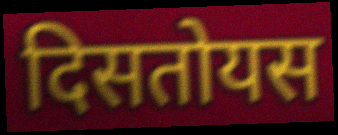
दिसतोयस